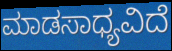
ಮಾಡಸಾಧ್ಯವಿದೆ